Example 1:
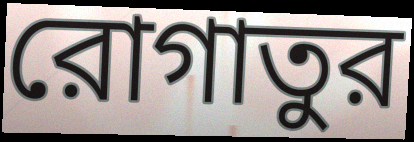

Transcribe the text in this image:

রোগাতুর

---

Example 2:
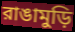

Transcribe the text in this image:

রাঙামুড়ি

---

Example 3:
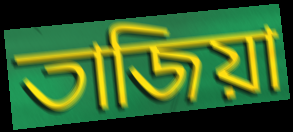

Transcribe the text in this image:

তাজিয়া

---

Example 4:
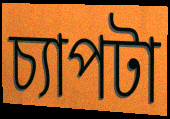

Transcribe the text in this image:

চ্যাপটা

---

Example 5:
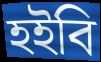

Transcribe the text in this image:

হইবি